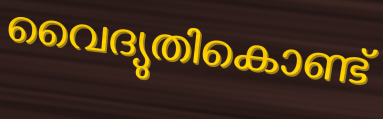
വൈദ്യുതികൊണ്ട്